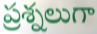
ప్రశ్నలుగా